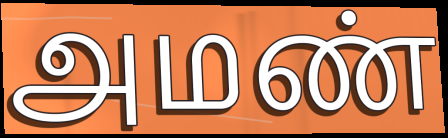
அமண்